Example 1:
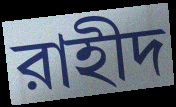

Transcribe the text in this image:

রাহীদ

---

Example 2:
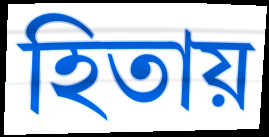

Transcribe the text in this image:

হিতায়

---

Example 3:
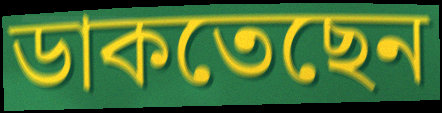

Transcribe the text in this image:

ডাকতেছেন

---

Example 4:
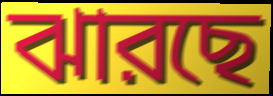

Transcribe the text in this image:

ঝারছে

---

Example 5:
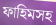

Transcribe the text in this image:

ফাহিমসহ